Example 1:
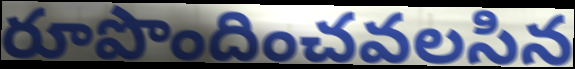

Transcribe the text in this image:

రూపొందించవలసిన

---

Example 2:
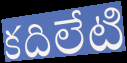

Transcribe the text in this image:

కదిలేటి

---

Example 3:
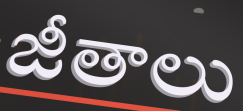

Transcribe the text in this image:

జీతాలు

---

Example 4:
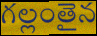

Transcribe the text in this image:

గల్లంతైన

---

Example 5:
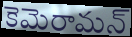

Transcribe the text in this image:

కెమెరామన్